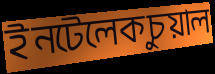
ইনটেলেকচুয়াল